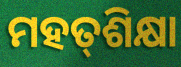
ମହତ୍‌ଶିକ୍ଷା